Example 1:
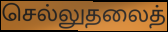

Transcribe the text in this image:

செல்லுதலைத்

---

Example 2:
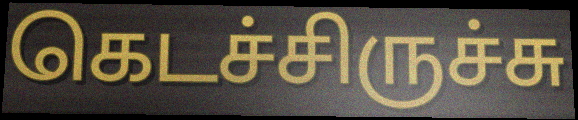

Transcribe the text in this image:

கெடச்சிருச்சு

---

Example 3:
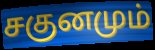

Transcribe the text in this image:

சகுனமும்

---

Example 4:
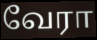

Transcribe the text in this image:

வேரா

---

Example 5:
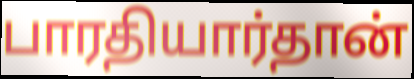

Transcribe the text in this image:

பாரதியார்தான்